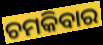
ଚମକିବାର